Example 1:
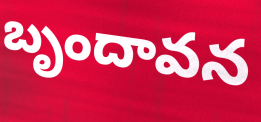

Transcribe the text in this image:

బృందావన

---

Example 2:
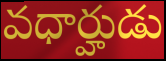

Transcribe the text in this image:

వధార్హుడు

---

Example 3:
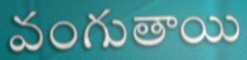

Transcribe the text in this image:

వంగుతాయి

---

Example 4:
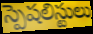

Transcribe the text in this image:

స్పెషలిస్టులు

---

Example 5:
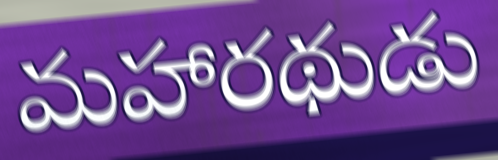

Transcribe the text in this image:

మహారథుడు